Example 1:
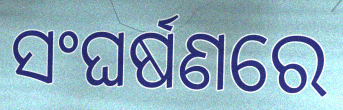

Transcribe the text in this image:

ସଂଘର୍ଷଣରେ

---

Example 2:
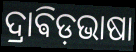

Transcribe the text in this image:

ଦ୍ରାଵିଡ଼ଭାଷା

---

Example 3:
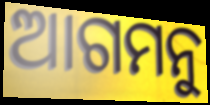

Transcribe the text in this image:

ଆଗମନୁ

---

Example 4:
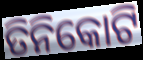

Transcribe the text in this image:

ତିନିକୋଟି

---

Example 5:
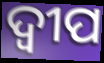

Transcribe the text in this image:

ଦ୍ବୀପ